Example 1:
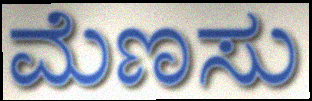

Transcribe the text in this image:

ಮೆಣಸು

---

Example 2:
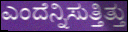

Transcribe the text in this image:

ಎಂದೆನ್ನಿಸುತ್ತಿತ್ತು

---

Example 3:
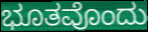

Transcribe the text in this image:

ಭೂತವೊಂದು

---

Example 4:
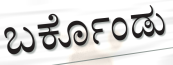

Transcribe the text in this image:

ಬರ್ಕೊಂಡು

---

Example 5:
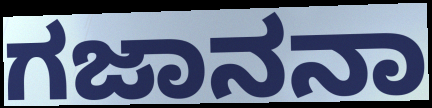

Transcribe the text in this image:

ಗಜಾನನಾ